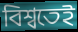
বিশ্বতেই